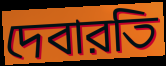
দেবারতি